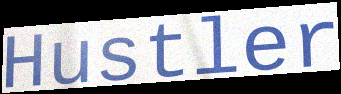
Hustler